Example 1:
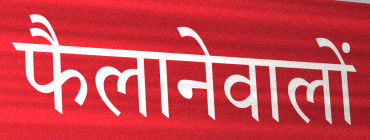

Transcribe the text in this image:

फैलानेवालों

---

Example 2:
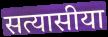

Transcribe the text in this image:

सत्यासीया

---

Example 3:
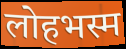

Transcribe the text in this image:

लोहभस्म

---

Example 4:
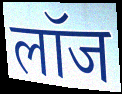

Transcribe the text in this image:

लॉज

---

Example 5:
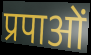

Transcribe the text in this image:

प्रपाओं